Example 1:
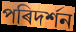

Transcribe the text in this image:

পৰিদৰ্শন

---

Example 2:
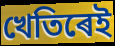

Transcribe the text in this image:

খেতিৰেই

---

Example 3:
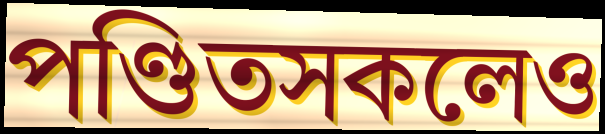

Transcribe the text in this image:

পণ্ডিতসকলেও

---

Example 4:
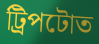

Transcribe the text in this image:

ট্ৰিপটোত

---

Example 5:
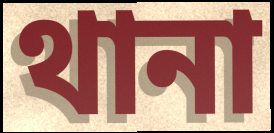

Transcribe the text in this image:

থানা